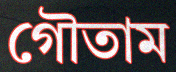
গৌতাম